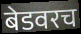
बेडवरच